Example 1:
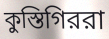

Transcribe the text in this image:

কুস্তিগিররা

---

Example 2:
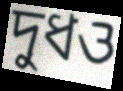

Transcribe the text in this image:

দুধও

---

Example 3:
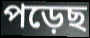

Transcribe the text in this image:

পড়েছ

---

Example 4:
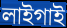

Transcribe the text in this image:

লাইগাই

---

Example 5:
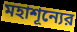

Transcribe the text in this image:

মহাশূন্যের